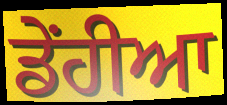
ਡੇਂਹੀਆ